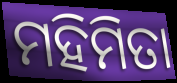
ମହିମିତା